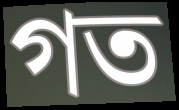
গত